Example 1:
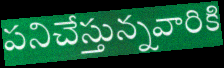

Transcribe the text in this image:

పనిచేస్తున్నవారికి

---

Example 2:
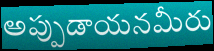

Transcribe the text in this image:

అప్పుడాయనమీరు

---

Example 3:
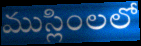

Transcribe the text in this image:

ముస్లింలలో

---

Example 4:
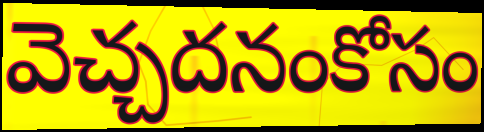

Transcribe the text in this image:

వెచ్చదనంకోసం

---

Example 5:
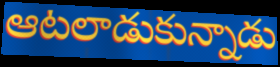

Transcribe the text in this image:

ఆటలాడుకున్నాడు